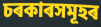
চৰকাৰসমূহৰ